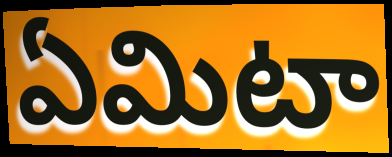
ఏమిటా